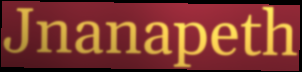
Jnanapeth